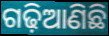
ଗଢ଼ିଆଣିଛି